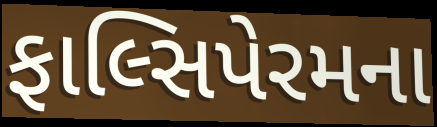
ફાલ્સિપેરમના